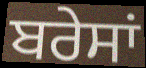
ਬਰੇਸਾਂ